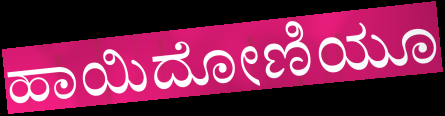
ಹಾಯಿದೋಣಿಯೂ